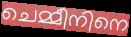
ചെമ്മീനിനെ